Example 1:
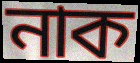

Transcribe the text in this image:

নাক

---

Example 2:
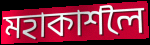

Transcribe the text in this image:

মহাকাশলৈ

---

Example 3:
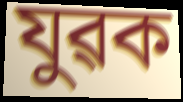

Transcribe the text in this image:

যুৱক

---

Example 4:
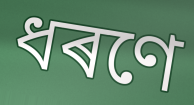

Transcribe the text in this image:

ধৰণে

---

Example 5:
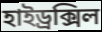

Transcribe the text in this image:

হাইড্ৰক্সিল